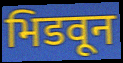
भिडवून